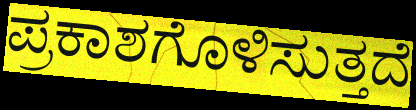
ಪ್ರಕಾಶಗೊಳಿಸುತ್ತದೆ